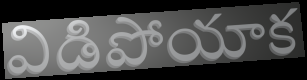
విడిపోయాక